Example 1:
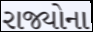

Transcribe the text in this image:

રાજ્યોના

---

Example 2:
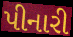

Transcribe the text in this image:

પીનારી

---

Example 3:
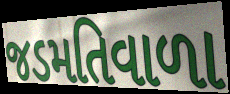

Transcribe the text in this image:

જડમતિવાળા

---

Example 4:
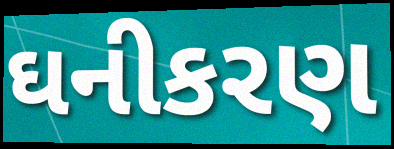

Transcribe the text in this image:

ઘનીકરણ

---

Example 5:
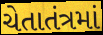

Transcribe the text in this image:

ચેતાતંત્રમાં